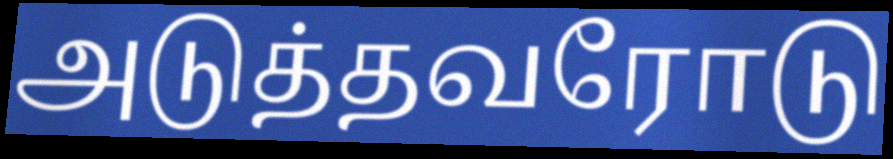
அடுத்தவரோடு